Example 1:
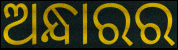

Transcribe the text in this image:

ଅନ୍ଧାରର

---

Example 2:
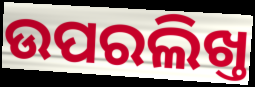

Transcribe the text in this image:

ଉପରଲିଖ୍ତ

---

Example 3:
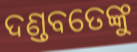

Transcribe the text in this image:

ଦଣ୍ଡବତେଙ୍କୁ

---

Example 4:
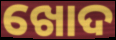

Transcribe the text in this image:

ଖୋଦ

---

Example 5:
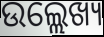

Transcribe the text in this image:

ଉଲ୍ଲେଖ୍ୟ